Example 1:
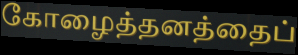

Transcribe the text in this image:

கோழைத்தனத்தைப்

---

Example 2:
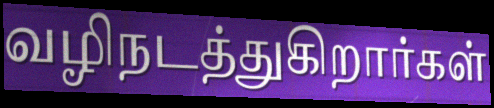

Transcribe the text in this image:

வழிநடத்துகிறார்கள்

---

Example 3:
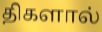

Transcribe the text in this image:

திகளால்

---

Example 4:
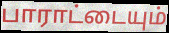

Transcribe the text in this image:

பாராட்டையும்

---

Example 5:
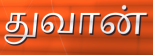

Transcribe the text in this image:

துவான்